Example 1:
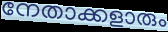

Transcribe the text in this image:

നേതാക്കളാരും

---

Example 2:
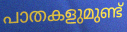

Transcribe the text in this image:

പാതകളുമുണ്ട്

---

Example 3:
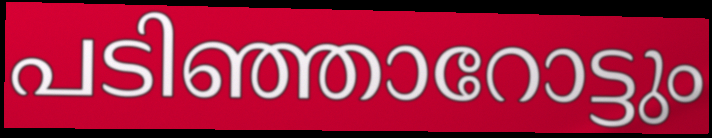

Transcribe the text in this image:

പടിഞ്ഞാറോട്ടും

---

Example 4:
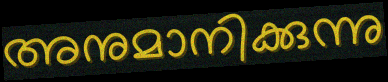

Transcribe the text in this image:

അനുമാനിക്കുന്നു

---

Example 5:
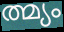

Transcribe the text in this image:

ത്മ്യം